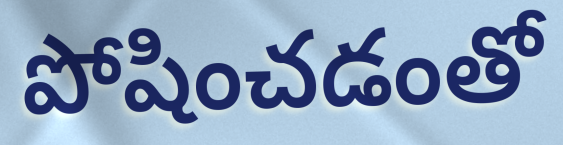
పోషించడంతో